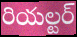
రియల్టర్